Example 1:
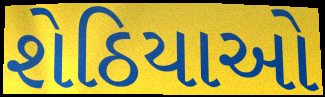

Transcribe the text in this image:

શેઠિયાઓ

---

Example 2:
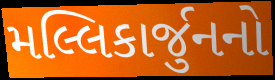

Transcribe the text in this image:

મલ્લિકાર્જુનનો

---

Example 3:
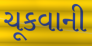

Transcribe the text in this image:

ચૂકવાની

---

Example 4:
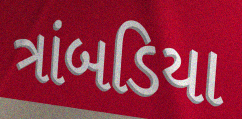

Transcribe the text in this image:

ત્રાંબડિયા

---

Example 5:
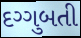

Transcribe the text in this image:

દગ્ગુબતી